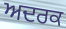
ਅਦਰਕ